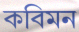
কবিমন